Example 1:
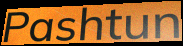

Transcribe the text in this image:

Pashtun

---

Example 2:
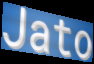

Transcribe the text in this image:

Jato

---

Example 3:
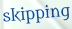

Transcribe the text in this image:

skipping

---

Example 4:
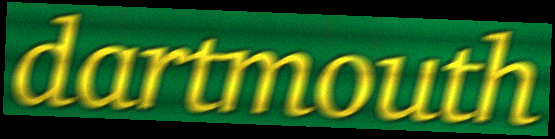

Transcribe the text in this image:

dartmouth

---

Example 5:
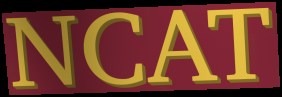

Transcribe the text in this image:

NCAT